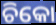
ଚିକୋ